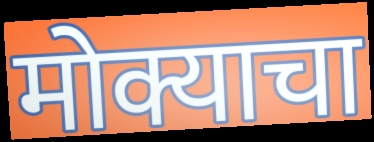
मोक्याचा